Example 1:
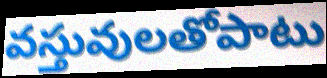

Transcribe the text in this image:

వస్తువులతోపాటు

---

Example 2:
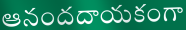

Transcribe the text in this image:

ఆనందదాయకంగా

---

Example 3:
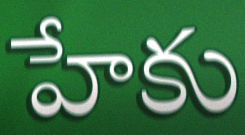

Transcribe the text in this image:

హేకు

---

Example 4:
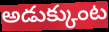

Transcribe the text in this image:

అడుక్కుంట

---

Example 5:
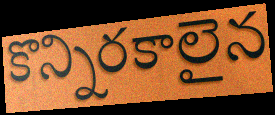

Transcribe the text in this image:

కొన్నిరకాలైన